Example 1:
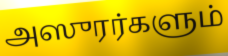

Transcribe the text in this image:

அஸுரர்களும்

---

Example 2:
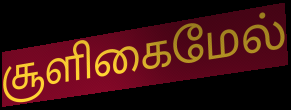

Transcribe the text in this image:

சூளிகைமேல்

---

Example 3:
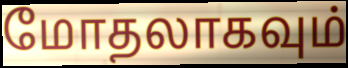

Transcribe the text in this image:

மோதலாகவும்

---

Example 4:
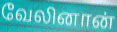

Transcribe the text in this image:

வேலினான்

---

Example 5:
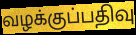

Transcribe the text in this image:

வழக்குப்பதிவு